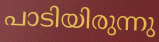
പാടിയിരുന്നു